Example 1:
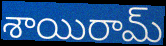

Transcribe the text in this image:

శాయిరామ్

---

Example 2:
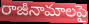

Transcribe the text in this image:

రాజీనామాలపై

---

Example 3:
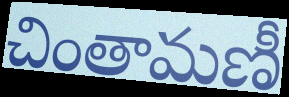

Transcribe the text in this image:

చింతామణీ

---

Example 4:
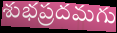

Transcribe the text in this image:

శుభప్రదమగు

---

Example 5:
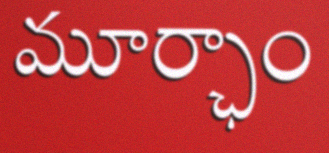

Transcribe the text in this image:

మూర్ఛాం